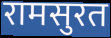
रामसुरत